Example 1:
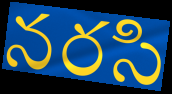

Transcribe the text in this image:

నరసి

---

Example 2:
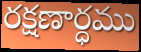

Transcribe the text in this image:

రక్షణార్ధము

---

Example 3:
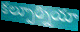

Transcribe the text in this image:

కల్పూర్నియా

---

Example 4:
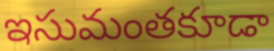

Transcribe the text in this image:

ఇసుమంతకూడా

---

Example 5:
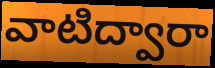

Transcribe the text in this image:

వాటిద్వారా